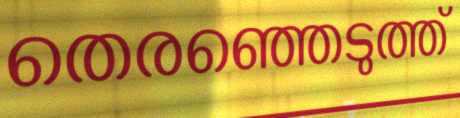
തെരഞ്ഞെടുത്ത്